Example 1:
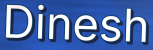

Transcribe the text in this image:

Dinesh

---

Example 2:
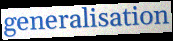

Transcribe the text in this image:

generalisation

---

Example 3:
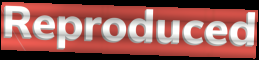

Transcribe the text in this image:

Reproduced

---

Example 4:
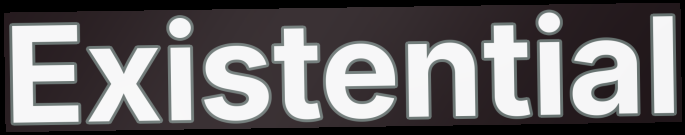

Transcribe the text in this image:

Existential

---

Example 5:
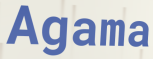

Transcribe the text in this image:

Agama